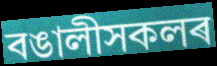
বঙালীসকলৰ